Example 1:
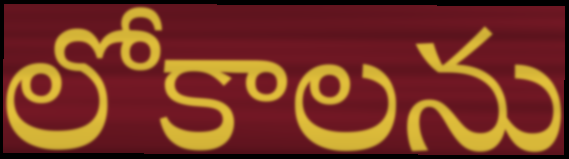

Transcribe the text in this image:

లోకాలను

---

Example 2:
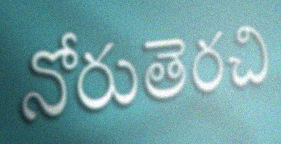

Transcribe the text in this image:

నోరుతెరచి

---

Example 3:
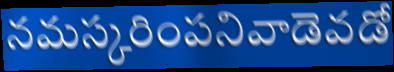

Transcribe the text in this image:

నమస్కరింపనివాడెవడో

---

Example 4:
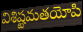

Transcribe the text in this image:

విశిష్టమతయోపి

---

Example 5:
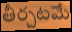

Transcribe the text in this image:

తీర్చటమే